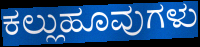
ಕಲ್ಲುಹೂವುಗಳು